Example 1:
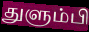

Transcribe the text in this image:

துளும்பி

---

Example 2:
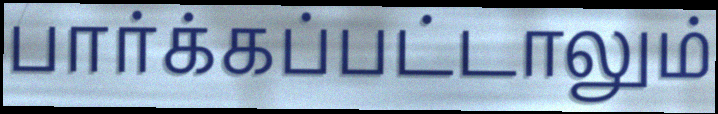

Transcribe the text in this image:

பார்க்கப்பட்டாலும்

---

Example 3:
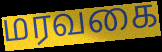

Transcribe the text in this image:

மரவகை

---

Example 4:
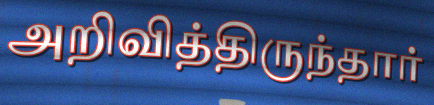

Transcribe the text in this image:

அறிவித்திருந்தார்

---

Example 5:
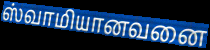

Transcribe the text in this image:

ஸ்வாமியானவனை